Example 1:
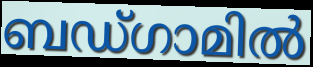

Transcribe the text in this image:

ബഡ്ഗാമിൽ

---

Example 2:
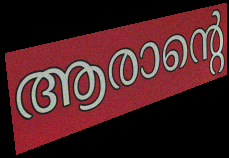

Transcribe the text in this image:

ആരാന്റെ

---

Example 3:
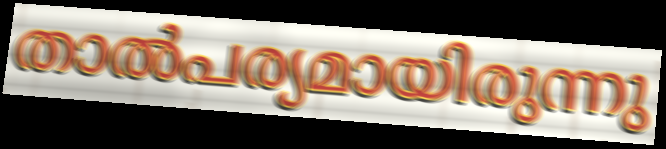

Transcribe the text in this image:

താൽപര്യമായിരുന്നു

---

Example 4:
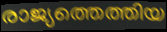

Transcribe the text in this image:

രാജ്യത്തെത്തിയ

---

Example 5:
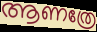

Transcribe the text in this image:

ആണത്രേ